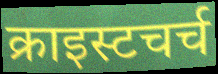
क्राइस्टचर्च